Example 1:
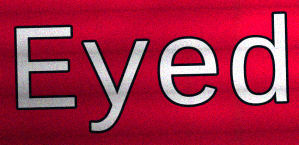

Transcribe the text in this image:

Eyed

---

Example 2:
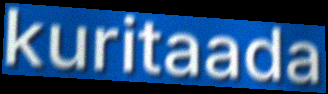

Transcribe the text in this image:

kuritaada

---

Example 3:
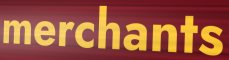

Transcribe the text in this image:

merchants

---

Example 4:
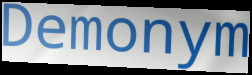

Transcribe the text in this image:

Demonym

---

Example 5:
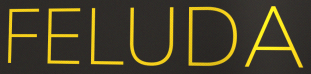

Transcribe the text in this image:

FELUDA